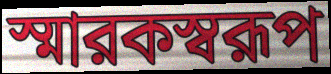
স্মারকস্বরূপ